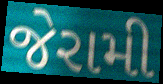
જેરામી